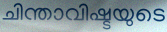
ചിന്താവിഷ്ടയുടെ